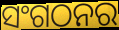
ସଂଗଠନର